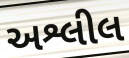
અશ્લીલ